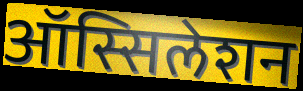
ऑस्सिलेशन